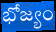
భోజ్యం